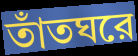
তাঁতঘরে